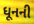
ધૂનની